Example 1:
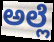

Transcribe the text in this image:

ಅಲ್ಲೆ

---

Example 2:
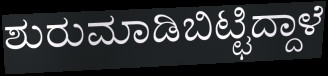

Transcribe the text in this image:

ಶುರುಮಾಡಿಬಿಟ್ಟಿದ್ದಾಳೆ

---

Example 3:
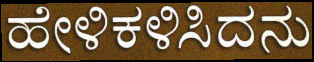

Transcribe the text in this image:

ಹೇಳಿಕಳಿಸಿದನು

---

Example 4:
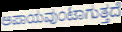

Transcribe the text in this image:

ಅಪಾಯವುಂಟಾಗುತ್ತದೆ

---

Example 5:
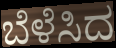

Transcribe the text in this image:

ಬೆಳೆಸಿದ